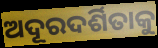
ଅଦୂରଦର୍ଶିତାକୁ